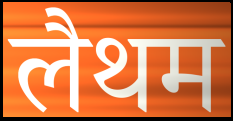
लैथम